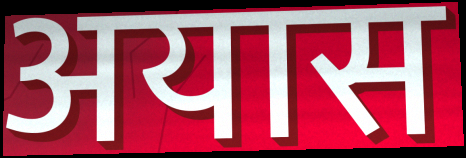
अयास